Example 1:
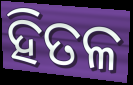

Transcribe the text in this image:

ହିତଳ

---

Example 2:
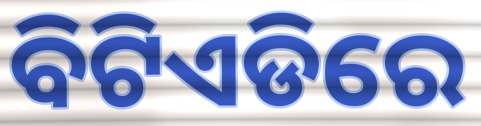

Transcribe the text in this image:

ବିଟିଏଡିରେ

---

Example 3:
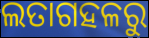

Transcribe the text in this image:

ଲତାଗହଳରୁ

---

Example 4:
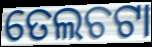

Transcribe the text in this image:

ତେଲଚଟା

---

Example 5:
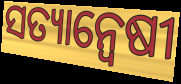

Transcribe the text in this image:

ସତ୍ୟାନ୍ଵେଷୀ